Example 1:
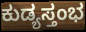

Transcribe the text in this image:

ಕುಡ್ಯಸ್ತಂಭ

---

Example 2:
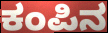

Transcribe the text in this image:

ಕಂಪಿನ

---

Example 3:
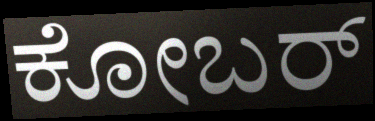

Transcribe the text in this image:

ಕೋಬರ್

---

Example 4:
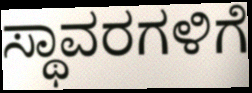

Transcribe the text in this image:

ಸ್ಥಾವರಗಳಿಗೆ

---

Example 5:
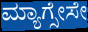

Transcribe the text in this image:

ಮ್ಯಾಗ್ಸೇಸೇ